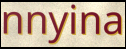
nnyina